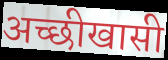
अच्छीखासी